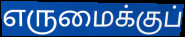
எருமைக்குப்